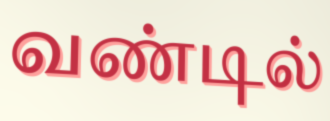
வண்டில்